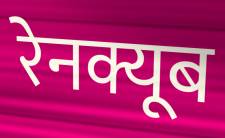
रेनक्यूब